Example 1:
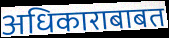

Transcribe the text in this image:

अधिकाराबाबत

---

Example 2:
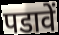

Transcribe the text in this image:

पडावें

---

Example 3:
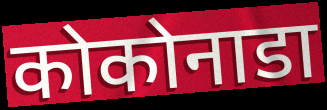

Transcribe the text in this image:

कोकोनाडा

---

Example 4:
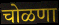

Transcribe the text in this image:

चोळणा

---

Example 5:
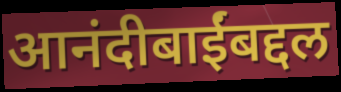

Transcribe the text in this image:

आनंदीबाईंबद्दल